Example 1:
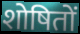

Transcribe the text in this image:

शोषितों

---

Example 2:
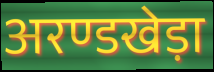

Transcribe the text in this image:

अरण्डखेड़ा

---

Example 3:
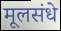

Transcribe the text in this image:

मूलसंधे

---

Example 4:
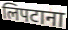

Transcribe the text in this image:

लिपटाना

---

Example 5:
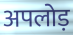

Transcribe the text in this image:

अपलोड़